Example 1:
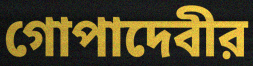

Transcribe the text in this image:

গোপাদেবীর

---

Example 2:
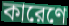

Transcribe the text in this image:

কারেণে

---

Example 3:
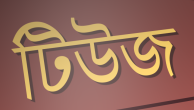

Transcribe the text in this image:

টিউজ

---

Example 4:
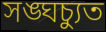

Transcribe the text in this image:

সঙ্ঘচ্যুত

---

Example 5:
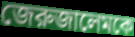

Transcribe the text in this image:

জেরুজালেমকে